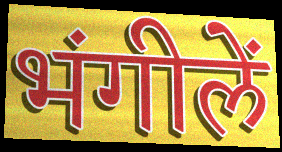
भंगीलें